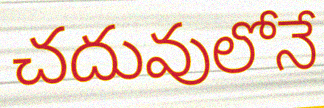
చదువులోనే